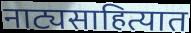
नाट्यसाहित्यात